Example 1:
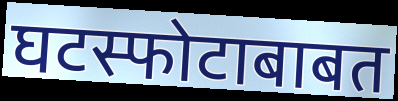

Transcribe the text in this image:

घटस्फोटाबाबत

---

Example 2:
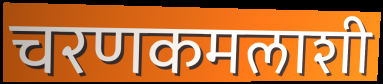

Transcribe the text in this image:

चरणकमलाशी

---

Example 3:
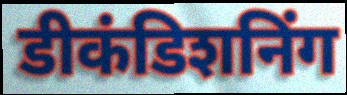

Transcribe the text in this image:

डीकंडिशनिंग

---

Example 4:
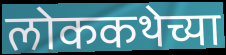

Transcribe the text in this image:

लोककथेच्या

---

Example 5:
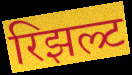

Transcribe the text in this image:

रिझल्ट